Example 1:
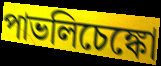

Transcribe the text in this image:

পাভলিচেঙ্কো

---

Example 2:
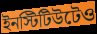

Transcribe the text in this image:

ইনস্টিটিউটেও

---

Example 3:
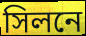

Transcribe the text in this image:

সিলনে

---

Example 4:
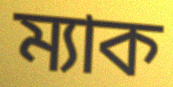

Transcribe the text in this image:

ম্যাক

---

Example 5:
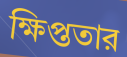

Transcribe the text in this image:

ক্ষিপ্ততার